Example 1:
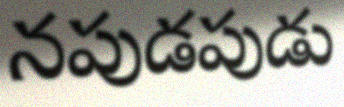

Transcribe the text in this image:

నపుడపుడు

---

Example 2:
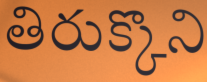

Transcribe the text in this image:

తిరుక్కొని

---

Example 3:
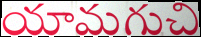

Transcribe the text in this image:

యామగుచి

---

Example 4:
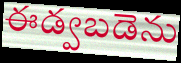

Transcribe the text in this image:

ఈడ్వబడెను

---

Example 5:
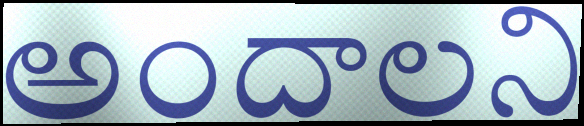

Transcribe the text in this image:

అందాలని